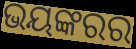
ଭୟଙ୍କରର